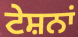
ਟੇਸ਼ਨਾਂ